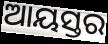
ଆୟସ୍ତର